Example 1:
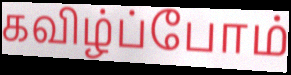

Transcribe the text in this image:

கவிழ்ப்போம்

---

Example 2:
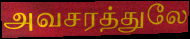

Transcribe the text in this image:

அவசரத்துலே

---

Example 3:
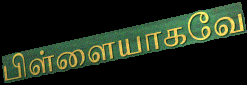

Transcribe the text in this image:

பிள்ளையாகவே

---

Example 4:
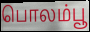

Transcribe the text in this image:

பொலம்பூ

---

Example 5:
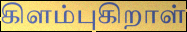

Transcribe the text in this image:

கிளம்புகிறாள்